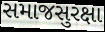
સમાજસુરક્ષા